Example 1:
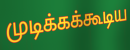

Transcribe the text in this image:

முடிக்கக்கூடிய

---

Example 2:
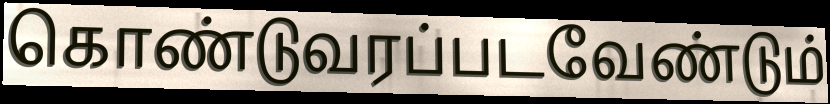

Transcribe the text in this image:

கொண்டுவரப்படவேண்டும்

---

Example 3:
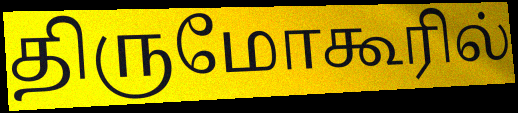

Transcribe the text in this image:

திருமோகூரில்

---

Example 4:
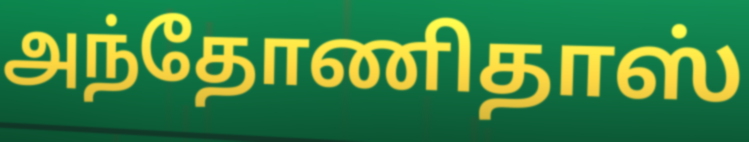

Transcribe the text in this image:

அந்தோணிதாஸ்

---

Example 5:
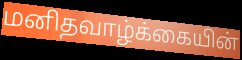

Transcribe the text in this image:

மனிதவாழ்க்கையின்